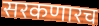
सरकणारच